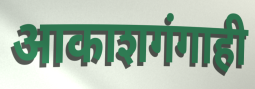
आकाशगंगाही